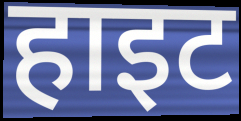
हाइट